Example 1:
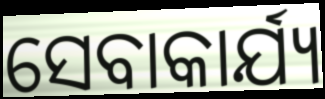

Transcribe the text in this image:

ସେବାକାର୍ଯ୍ୟ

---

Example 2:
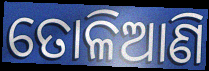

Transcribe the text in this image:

ତୋଳିଆଣି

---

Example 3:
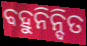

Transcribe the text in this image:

ବହୁନିନ୍ଦିତ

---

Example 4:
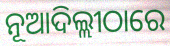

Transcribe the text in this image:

ନୂଆଦିଲ୍ଲୀଠାରେ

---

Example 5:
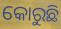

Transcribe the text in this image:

କୋରୁଛି